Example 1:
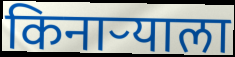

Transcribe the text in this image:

किनाऱ्याला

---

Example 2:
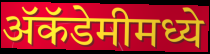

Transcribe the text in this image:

ॲकॅडेमीमध्ये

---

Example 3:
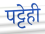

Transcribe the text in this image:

पट्टेही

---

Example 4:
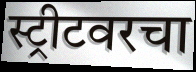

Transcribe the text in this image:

स्ट्रीटवरचा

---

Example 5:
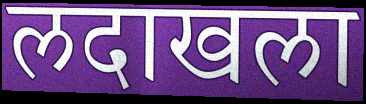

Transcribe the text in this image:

लदाखला